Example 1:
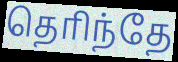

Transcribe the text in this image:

தெரிந்தே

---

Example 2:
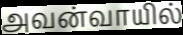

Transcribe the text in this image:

அவன்வாயில்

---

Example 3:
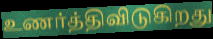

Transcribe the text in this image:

உணர்த்திவிடுகிறது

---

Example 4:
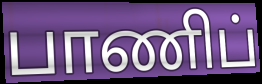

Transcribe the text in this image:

பாணிப்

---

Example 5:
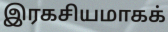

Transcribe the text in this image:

இரகசியமாகக்